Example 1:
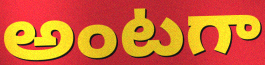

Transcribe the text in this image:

అంటగా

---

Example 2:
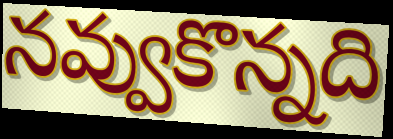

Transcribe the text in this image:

నవ్వుకొన్నది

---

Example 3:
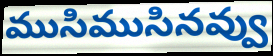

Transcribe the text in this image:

ముసిముసినవ్వు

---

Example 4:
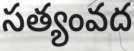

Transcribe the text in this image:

సత్యంవద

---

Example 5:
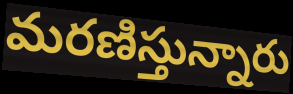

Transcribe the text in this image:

మరణిస్తున్నారు